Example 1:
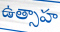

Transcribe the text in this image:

ఉత్సాహ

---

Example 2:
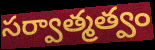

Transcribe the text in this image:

సర్వాత్మత్వం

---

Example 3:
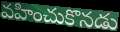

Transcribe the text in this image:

వహించుకొనడు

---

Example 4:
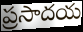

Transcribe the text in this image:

ప్రసాదయ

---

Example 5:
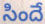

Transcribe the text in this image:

సిందే